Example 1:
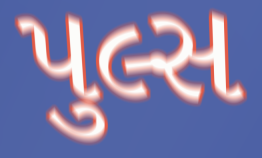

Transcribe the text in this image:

પુલ્સ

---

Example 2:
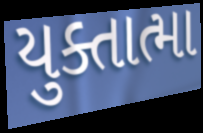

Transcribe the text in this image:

યુક્તાત્મા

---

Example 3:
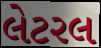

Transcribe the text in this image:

લેટરલ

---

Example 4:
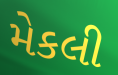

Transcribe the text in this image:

મેકલી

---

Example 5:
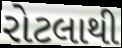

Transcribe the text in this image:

રોટલાથી